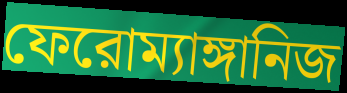
ফেরোম্যাঙ্গানিজ